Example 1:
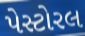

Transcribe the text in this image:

પેસ્ટોરલ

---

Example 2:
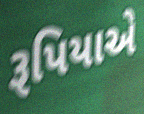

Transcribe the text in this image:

રૂપિયાએ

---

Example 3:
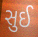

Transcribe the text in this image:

સુઈ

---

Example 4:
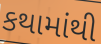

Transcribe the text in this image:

કથામાંથી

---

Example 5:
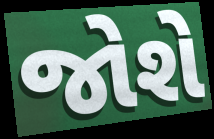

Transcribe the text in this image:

જોશે